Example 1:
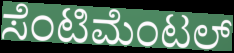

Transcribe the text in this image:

ಸೆಂಟಿಮೆಂಟಲ್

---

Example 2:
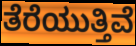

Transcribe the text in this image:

ತೆರೆಯುತ್ತಿವೆ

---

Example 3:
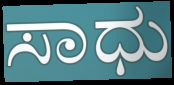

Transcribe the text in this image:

ಸಾಧು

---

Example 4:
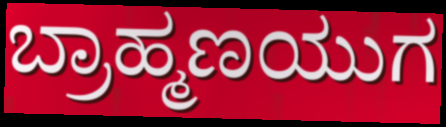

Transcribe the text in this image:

ಬ್ರಾಹ್ಮಣಯುಗ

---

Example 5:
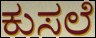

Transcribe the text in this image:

ಕುಸಲೆ